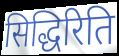
सिद्धिरिति